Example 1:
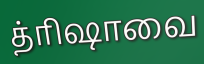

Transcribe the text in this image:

த்ரிஷாவை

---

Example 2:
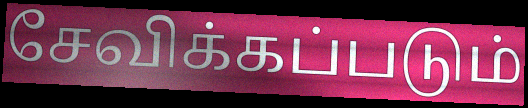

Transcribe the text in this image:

சேவிக்கப்படும்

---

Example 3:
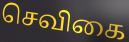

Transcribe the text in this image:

செவிகை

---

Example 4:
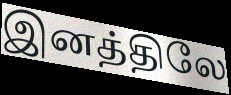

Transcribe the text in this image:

இனத்திலே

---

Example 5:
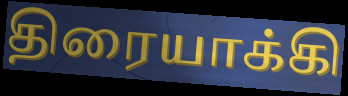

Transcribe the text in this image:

திரையாக்கி